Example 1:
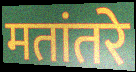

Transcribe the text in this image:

मतांतरे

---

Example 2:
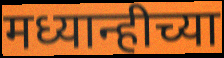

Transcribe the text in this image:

मध्यान्हीच्या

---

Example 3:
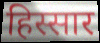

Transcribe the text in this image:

हिस्सार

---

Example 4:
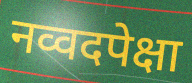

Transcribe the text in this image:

नव्वदपेक्षा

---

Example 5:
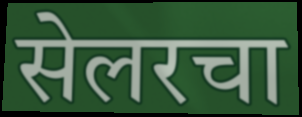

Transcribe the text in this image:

सेलरचा